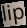
lip